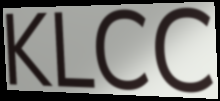
KLCC